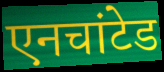
एनचांटेड